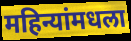
महिन्यांमधला